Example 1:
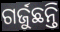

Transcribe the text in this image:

ଗର୍ଜୁଛନ୍ତି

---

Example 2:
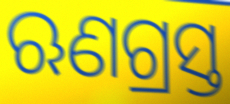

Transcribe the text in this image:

ଋଣଗ୍ରସ୍ତ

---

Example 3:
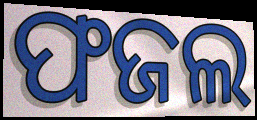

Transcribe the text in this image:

ଫଜଲ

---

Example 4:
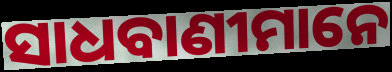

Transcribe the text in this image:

ସାଧବାଣୀମାନେ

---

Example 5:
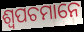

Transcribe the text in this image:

ଶ୍ୱପଚମାନେ